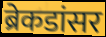
ब्रेकडांसर